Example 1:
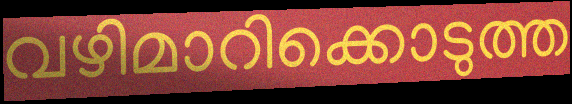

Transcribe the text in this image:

വഴിമാറിക്കൊടുത്ത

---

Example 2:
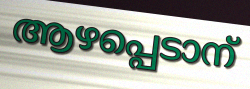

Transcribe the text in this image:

ആഴപ്പെടാന്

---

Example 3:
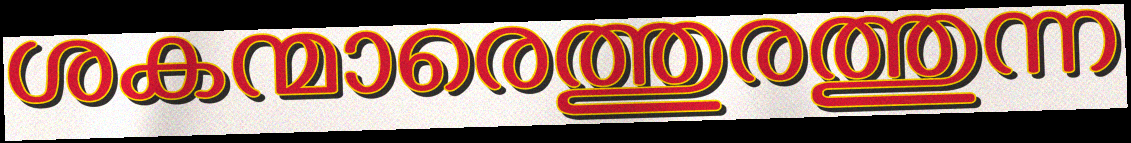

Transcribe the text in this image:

ശകന്മാരെത്തുരത്തുന്ന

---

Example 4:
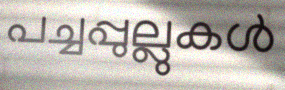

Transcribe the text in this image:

പച്ചപ്പുല്ലുകൾ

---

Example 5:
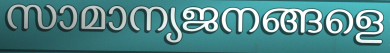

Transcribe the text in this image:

സാമാന്യജനങ്ങളെ